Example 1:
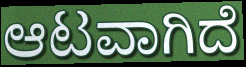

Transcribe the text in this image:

ಆಟವಾಗಿದೆ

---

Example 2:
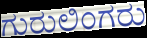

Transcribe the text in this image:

ಗುರುಲಿಂಗರು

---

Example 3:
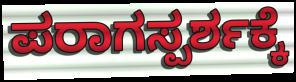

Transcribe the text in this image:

ಪರಾಗಸ್ಪರ್ಶಕ್ಕೆ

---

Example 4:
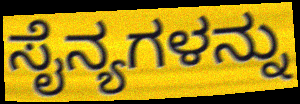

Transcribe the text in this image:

ಸೈನ್ಯಗಳನ್ನು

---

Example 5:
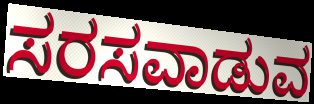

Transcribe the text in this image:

ಸರಸವಾಡುವ